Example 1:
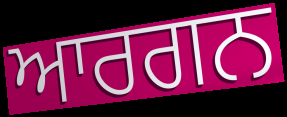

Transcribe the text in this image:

ਆਰਗਨ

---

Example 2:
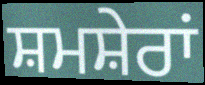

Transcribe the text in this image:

ਸ਼ਮਸ਼ੇਰਾਂ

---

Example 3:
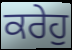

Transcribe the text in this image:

ਕਰੇਹੁ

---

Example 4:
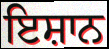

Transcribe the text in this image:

ਇਸ਼ਾਨ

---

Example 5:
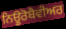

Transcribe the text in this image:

ਨਿਊਰੋਬੈਵੀਅਰ